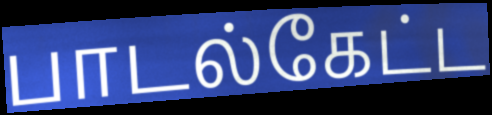
பாடல்கேட்ட